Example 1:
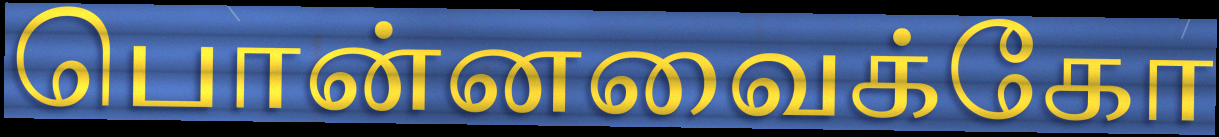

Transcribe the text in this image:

பொன்னவைக்கோ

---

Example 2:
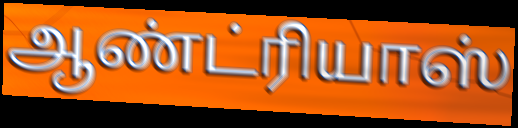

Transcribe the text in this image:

ஆண்ட்ரியாஸ்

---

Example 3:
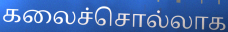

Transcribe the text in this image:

கலைச்சொல்லாக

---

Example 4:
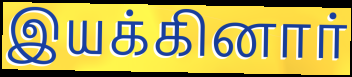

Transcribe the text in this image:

இயக்கினார்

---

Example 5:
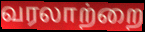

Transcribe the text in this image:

வரலாற்றை